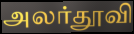
அலர்தூவி